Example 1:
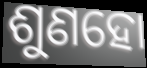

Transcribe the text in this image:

ଶୁଣହୋ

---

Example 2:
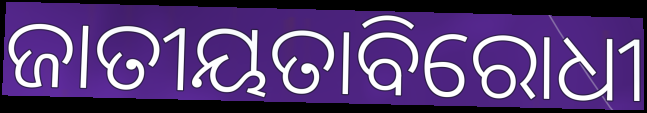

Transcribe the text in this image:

ଜାତୀୟତାବିରୋଧୀ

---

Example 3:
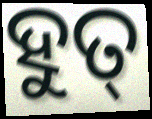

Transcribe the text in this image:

ହୁତ୍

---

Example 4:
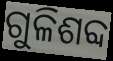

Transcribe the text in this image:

ଗୁଳିଶବ୍ଦ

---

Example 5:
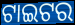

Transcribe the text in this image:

ଟାଇଟର